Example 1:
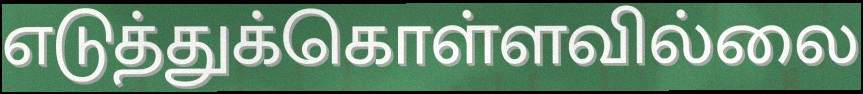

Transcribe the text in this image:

எடுத்துக்கொள்ளவில்லை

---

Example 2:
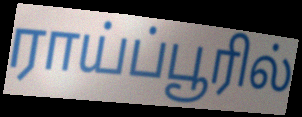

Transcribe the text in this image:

ராய்ப்பூரில்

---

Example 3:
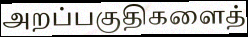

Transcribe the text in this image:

அறப்பகுதிகளைத்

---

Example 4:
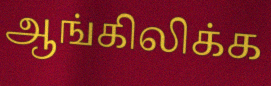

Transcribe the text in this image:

ஆங்கிலிக்க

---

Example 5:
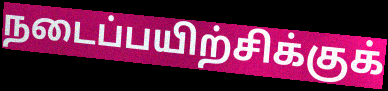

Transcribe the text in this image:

நடைப்பயிற்சிக்குக்